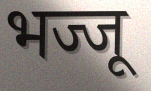
भज्जू